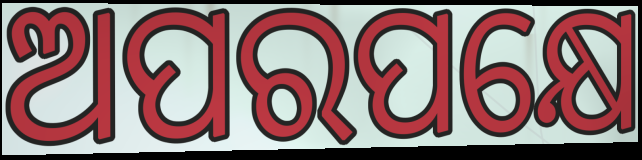
ଅପରପକ୍ଷେ